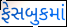
ફેસબુકમાં